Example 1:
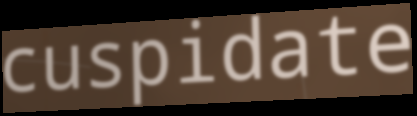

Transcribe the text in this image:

cuspidate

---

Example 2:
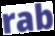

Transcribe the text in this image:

rab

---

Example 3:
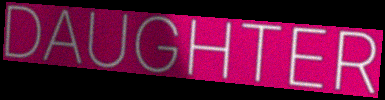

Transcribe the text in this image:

DAUGHTER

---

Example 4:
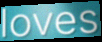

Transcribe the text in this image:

loves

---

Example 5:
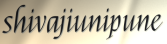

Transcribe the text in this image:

shivajiunipune